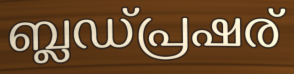
ബ്ലഡ്പ്രഷര്